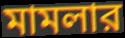
মামলার